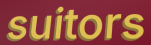
suitors